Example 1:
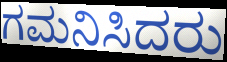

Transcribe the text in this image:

ಗಮನಿಸಿದರು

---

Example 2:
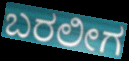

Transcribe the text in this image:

ಬರಲೀಗ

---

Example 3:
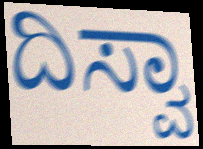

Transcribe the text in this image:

ದಿಸ್ವಾ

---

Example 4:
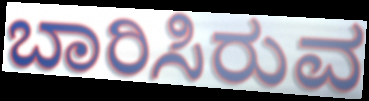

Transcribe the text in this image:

ಬಾರಿಸಿರುವ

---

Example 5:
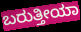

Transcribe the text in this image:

ಬರುತ್ತೀಯಾ